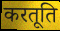
करतूति